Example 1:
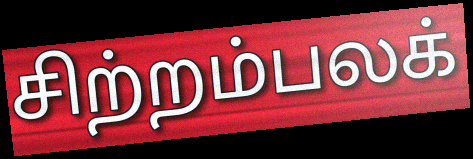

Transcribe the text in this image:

சிற்றம்பலக்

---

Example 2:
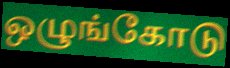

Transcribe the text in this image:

ஒழுங்கோடு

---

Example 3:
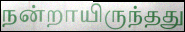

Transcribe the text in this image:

நன்றாயிருந்தது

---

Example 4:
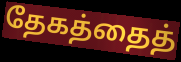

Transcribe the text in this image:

தேகத்தைத்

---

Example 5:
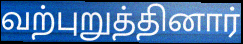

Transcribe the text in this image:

வற்புறுத்தினார்